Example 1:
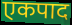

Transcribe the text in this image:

एकपाद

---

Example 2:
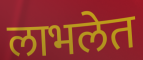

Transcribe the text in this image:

लाभलेत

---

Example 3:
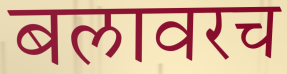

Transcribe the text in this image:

बलावरच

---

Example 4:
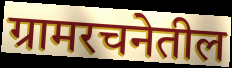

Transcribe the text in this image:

ग्रामरचनेतील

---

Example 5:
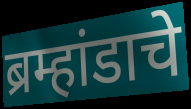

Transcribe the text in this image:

ब्रम्हांडाचे